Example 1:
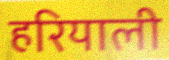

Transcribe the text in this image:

हरियाली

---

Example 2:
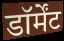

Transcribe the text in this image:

डॉर्मेंट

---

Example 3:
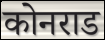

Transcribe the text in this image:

कोनराड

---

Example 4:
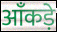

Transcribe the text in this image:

आँकड़े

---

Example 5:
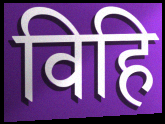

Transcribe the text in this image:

विहि